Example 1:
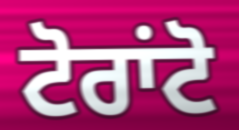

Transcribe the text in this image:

ਟੋਰਾਂਟੋ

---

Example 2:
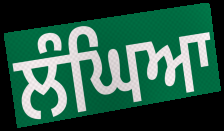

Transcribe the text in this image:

ਲੰਘਿਆ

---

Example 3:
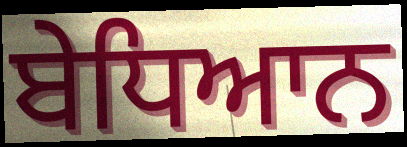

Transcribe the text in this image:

ਬੇਧਿਆਨ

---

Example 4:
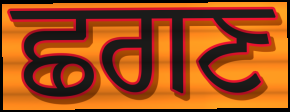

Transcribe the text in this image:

ਛਗਣ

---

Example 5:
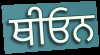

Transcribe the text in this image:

ਥੀਓਨ